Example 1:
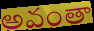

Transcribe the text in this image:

అవంతా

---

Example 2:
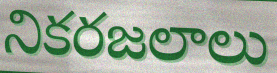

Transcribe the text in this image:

నికరజలాలు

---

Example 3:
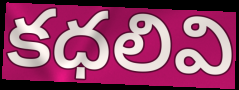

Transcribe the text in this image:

కధలివి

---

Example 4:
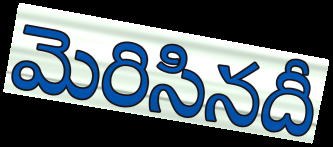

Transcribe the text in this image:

మెరిసినదీ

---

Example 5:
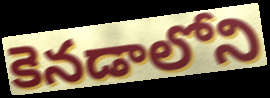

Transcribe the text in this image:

కెనడాలోని